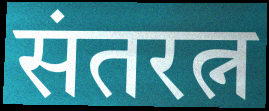
संतरत्न